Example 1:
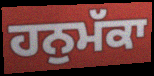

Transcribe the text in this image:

ਹਨੁਮੱਕਾ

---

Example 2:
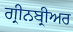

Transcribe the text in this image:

ਗ੍ਰੀਨਬ੍ਰੀਅਰ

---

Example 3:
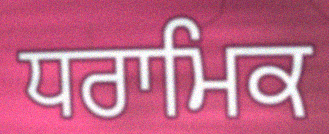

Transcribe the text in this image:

ਧਰਾਮਿਕ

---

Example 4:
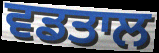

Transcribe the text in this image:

ਵਡਤਾਲ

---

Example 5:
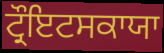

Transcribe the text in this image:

ਟ੍ਰੌਇਟਸਕਾਯਾ